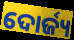
ଦୋର୍ଜ୍ୟ